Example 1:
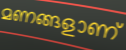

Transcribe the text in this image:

മണങ്ങളാണ്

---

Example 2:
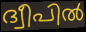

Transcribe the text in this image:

ദ്വീപിൽ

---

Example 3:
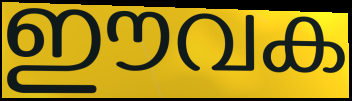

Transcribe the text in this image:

ഈവക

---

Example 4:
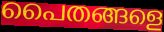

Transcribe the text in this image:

പൈതങ്ങളെ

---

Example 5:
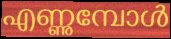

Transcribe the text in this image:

എണ്ണുമ്പോൾ